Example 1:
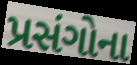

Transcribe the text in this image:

પ્રસંગોના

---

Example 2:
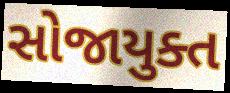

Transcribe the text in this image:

સોજાયુક્ત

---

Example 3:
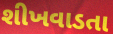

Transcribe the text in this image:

શીખવાડતા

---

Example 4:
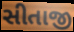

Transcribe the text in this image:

સીતાજી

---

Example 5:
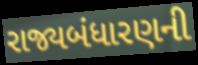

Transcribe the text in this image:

રાજ્યબંધારણની